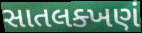
સાતલક્ખણં